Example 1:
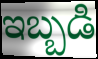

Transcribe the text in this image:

ఇబ్బడి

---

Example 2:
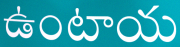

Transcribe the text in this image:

ఉంటాయ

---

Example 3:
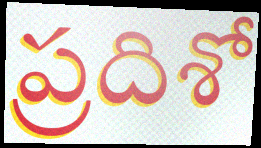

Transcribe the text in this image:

ప్రదిశో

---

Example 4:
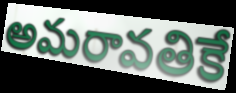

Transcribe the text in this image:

అమరావతికే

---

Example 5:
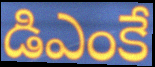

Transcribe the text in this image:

డిఎంకే